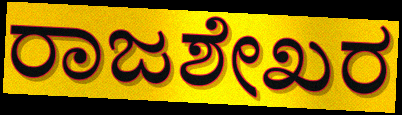
ರಾಜಶೇಖರ